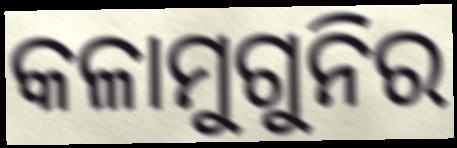
କଳାମୁଗୁନିର